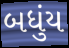
બધુંય